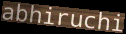
abhiruchi